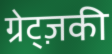
ग्रेट्ज़की